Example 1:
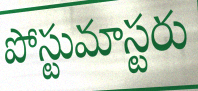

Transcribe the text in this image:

పోస్టుమాస్టరు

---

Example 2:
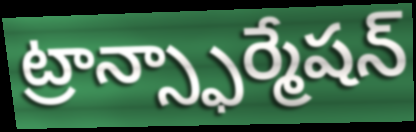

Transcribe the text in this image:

ట్రాన్స్ఫార్మేషన్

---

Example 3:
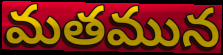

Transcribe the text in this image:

మతమున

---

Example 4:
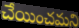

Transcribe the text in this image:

చేయించమని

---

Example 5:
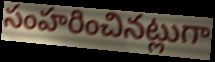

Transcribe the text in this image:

సంహరించినట్లుగా